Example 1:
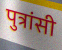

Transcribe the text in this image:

पुत्रांसी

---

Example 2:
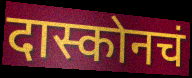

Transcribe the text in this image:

दास्कोनचं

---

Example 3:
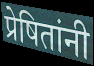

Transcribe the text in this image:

प्रेषितांनी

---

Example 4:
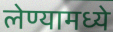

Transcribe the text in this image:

लेण्यामध्ये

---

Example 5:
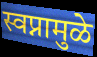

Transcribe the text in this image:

स्वप्नामुळे